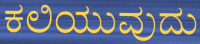
ಕಲಿಯುವುದು